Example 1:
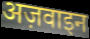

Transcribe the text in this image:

अज़वाइन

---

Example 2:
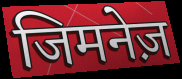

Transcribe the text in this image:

जिमनेज़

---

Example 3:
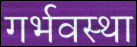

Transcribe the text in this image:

गर्भवस्था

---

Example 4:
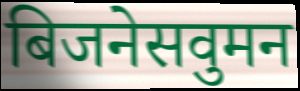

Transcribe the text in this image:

बिजनेसवुमन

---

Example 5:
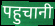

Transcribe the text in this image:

पहुचानी